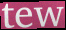
tew